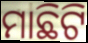
ମାଛିଟି